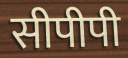
सीपीपी